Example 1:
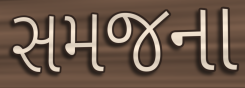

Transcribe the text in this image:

સમજના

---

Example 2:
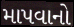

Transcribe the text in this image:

માપવાનો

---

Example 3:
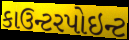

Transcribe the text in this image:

કાઉન્ટરપોઇન્ટ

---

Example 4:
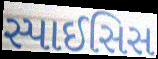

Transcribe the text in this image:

સ્પાઈસિસ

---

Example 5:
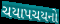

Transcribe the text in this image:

ચયાપચયનો